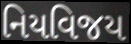
નિયવિજય